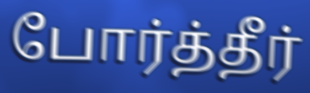
போர்த்தீர்